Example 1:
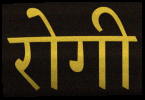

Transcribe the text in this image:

रोगी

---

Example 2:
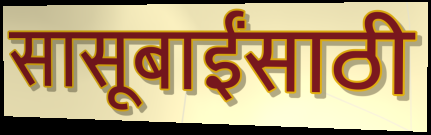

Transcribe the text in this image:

सासूबाईंसाठी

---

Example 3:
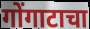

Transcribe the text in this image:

गोंगाटाचा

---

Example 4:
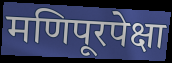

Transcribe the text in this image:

मणिपूरपेक्षा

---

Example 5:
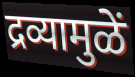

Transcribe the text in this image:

द्रव्यामुळें